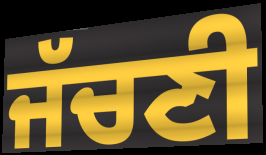
ਜੱਚਣੀ